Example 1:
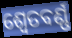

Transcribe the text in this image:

ଶ୍ୱେତବର୍ଣ୍ଣ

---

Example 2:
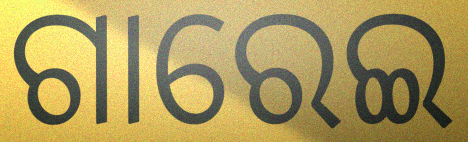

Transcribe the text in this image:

ଗାରେଇ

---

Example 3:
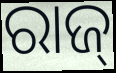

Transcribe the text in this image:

ରାଜ୍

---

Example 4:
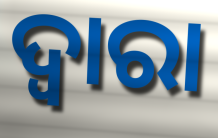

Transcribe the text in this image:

ଦ୍ଵାରା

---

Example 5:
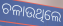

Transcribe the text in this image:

ଚଳାଉଥିଲେ